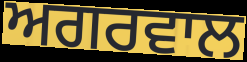
ਅਗਰਵਾਲ